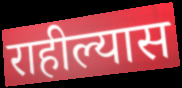
राहील्यास